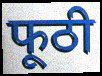
फूठी